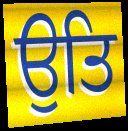
ਉਤਿ